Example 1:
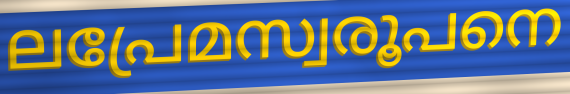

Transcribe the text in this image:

ലപ്രേമസ്വരൂപനെ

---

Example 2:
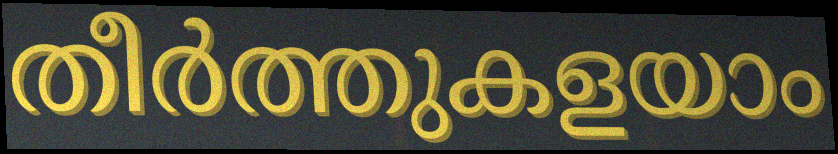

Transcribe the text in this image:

തീർത്തുകളയാം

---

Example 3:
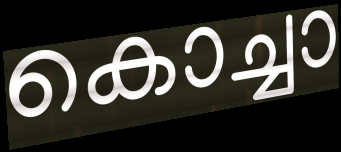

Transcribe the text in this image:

കൊച്ചാ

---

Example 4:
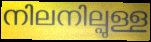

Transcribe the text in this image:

നിലനില്പുള്ള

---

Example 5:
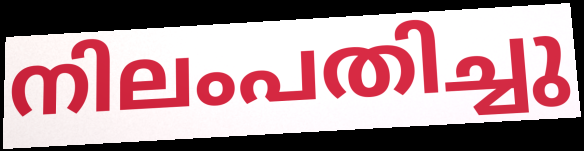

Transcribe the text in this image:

നിലംപതിച്ചു